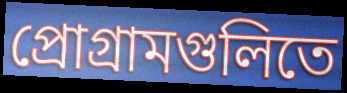
প্রোগ্রামগুলিতে